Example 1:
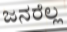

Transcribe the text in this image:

ಜನರೆಲ್ಲ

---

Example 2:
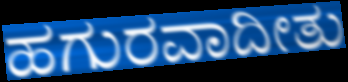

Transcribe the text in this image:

ಹಗುರವಾದೀತು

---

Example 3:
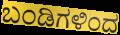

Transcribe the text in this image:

ಬಂಡಿಗಳಿಂದ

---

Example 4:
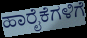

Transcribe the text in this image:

ಹಾರೈಕೆಗಳಿಗೆ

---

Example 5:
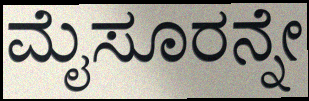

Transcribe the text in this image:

ಮೈಸೂರನ್ನೇ